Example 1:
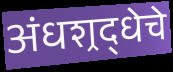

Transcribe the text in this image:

अंधश्रद्धेचे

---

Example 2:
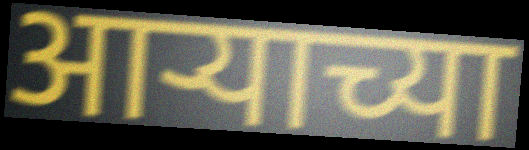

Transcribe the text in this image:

आऱ्याच्या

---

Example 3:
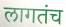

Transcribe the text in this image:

लागतंच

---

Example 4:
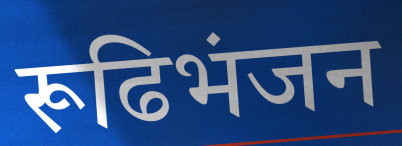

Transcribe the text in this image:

रूढिभंजन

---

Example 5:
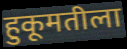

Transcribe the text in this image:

हुकूमतीला